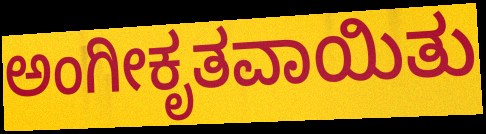
ಅಂಗೀಕೃತವಾಯಿತು